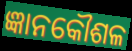
ଜ୍ଞାନକୌଶଳ